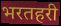
भरतहरी